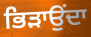
ਭਿੜਾਉਂਦਾ